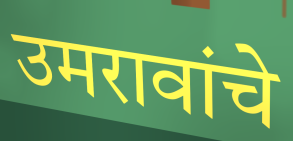
उमरावांचे